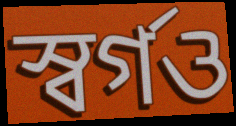
স্বর্গও